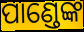
ପାଣ୍ଡେଙ୍କ